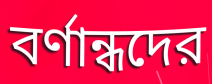
বর্ণান্ধদের